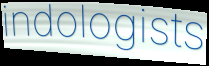
indologists